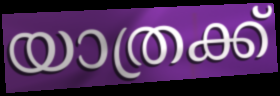
യാത്രക്ക്